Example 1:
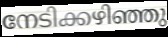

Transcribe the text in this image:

നേടിക്കഴിഞ്ഞു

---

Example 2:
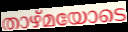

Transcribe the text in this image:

താഴ്മയോടെ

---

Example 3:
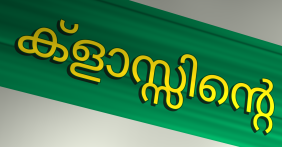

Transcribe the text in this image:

ക്ളാസ്സിന്റെ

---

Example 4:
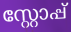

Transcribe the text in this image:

സ്റ്റോപ്പ്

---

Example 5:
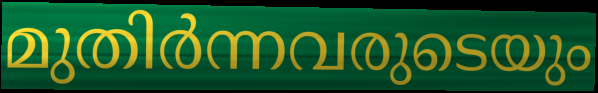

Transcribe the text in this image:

മുതിർന്നവരുടെയും